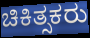
ಚಿಕಿತ್ಸಕರು